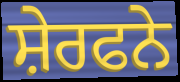
ਸ਼ੇਰਫਨੇ